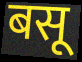
बसू